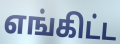
எங்கிட்ட